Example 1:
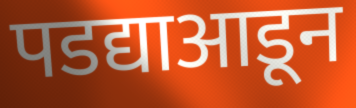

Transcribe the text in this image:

पडद्याआडून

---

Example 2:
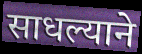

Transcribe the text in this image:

साधल्याने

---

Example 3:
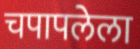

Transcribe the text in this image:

चपापलेला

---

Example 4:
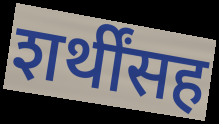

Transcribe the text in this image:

शर्थींसह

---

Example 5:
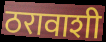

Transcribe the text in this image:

ठरावाशी